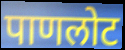
पाणलोट